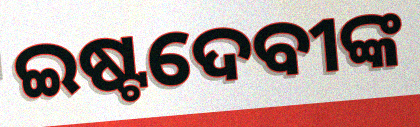
ଇଷ୍ଟଦେବୀଙ୍କ